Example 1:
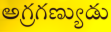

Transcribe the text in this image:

అగ్రగణ్యుడు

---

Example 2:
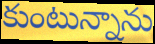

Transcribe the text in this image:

కుంటున్నాను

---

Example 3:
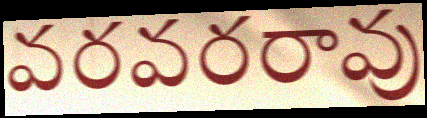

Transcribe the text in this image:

వరవరరావు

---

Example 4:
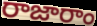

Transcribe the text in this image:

రాజారాం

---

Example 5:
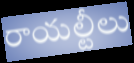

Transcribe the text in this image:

రాయల్టీలు